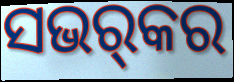
ସଭର୍‌କର